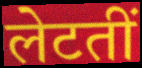
लेटतीं